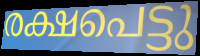
രക്ഷപെട്ടു